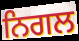
ਨਿਗਲ